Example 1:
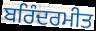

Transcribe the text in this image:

ਬਰਿੰਦਰਮੀਤ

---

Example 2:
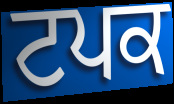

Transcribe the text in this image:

ਟਪਕ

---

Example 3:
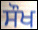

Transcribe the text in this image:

ਸੌਖ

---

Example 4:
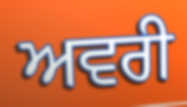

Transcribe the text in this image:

ਅਵਰੀ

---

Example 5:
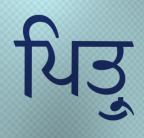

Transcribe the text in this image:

ਪਿਤ੍ਰੁ